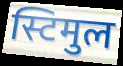
स्टिमुल